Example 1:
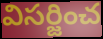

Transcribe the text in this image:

విసర్జించ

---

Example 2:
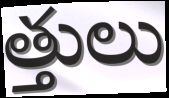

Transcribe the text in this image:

త్తులు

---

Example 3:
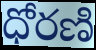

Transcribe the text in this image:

ధోరణి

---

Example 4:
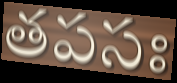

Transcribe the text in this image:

తపసః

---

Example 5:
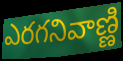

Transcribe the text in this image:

ఎరగనివాణ్ణి